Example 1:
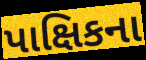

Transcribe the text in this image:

પાક્ષિકના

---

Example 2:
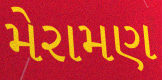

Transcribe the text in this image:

મેરામણ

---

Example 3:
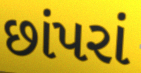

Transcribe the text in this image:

છાંપરાં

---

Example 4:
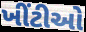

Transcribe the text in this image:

ખીંટીઓ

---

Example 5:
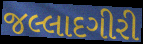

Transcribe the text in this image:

જલ્લાદગીરી